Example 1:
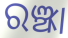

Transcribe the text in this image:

ରଞ୍ଝା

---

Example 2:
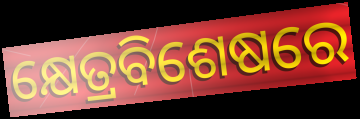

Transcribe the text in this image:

କ୍ଷେତ୍ରବିଶେଷରେ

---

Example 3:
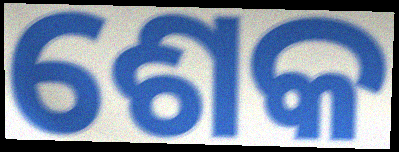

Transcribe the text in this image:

ଶେକ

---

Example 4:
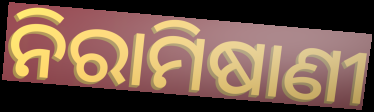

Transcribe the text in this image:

ନିରାମିଷାଣୀ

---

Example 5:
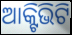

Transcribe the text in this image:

ଆକ୍ଟିଭିଟି